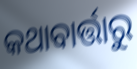
କଥାବାର୍ତ୍ତାରୁ